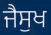
ਜੈਸੁਖ